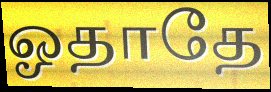
ஓதாதே